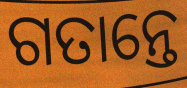
ଗତାନ୍ତେ